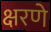
क्षरणे